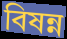
বিষন্ন